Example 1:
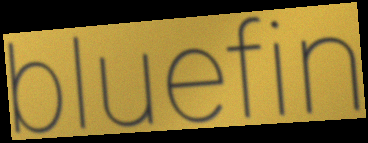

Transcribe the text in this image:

bluefin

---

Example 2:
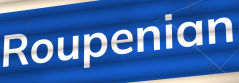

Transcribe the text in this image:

Roupenian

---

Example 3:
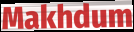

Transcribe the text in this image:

Makhdum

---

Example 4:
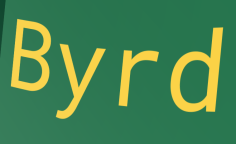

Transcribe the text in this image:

Byrd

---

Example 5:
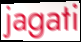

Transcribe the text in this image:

jagati